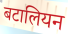
बटालियन